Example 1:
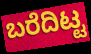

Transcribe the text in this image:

ಬರೆದಿಟ್ಟ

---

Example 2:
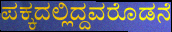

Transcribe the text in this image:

ಪಕ್ಕದಲ್ಲಿದ್ದವರೊಡನೆ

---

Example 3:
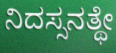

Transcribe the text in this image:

ನಿದಸ್ಸನತ್ಥೇ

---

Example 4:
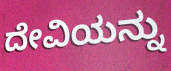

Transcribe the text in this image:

ದೇವಿಯನ್ನು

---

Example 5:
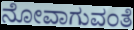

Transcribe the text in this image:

ನೋವಾಗುವಂತೆ